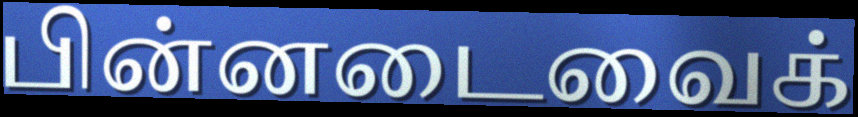
பின்னடைவைக்